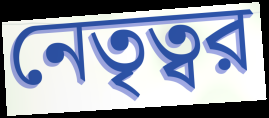
নেতৃত্বর